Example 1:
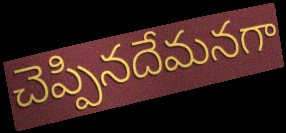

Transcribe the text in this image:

చెప్పినదేమనగా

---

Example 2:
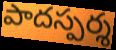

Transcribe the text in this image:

పాదస్పర్శ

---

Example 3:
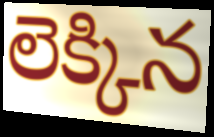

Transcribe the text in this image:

లెక్కిన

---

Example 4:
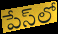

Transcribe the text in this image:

పేస్‌లో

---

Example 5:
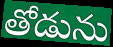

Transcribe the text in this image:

తోడును